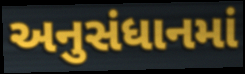
અનુસંધાનમાં